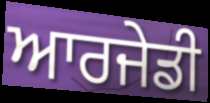
ਆਰਜੇਡੀ